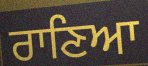
ਰਾਣਿਆ